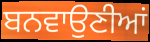
ਬਨਵਾਉਣੀਆਂ